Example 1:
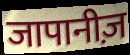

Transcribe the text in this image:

जापानीज़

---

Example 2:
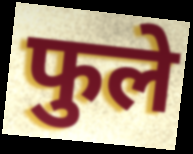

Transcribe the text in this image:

फुले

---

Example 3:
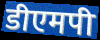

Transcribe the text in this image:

डीएमपी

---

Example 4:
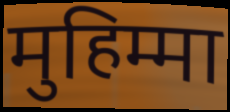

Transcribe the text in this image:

मुहिम्मा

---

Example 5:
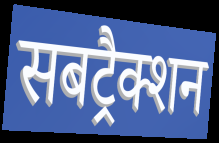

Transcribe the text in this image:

सबट्रैक्शन